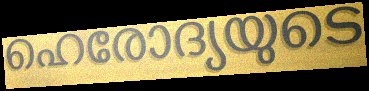
ഹെരോദ്യയുടെ